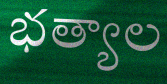
భత్యాల